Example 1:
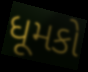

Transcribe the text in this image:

ધૂમકો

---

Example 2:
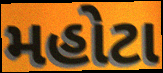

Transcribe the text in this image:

મહોટા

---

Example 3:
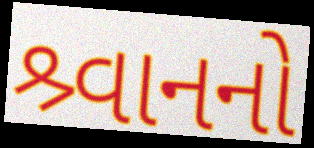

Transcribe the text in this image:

શ્ર્વાનનો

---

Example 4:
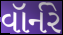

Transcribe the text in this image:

વૉર્નરે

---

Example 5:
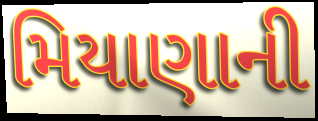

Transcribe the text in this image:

મિયાણાની